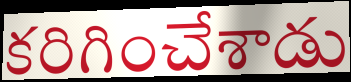
కరిగించేశాడు